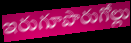
ఇరుగూపొరుగోల్లు